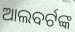
ଆଲବର୍ଟଙ୍କ